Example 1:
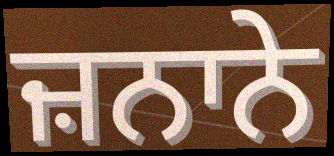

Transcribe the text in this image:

ਜ਼ਨਾਨੇ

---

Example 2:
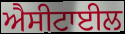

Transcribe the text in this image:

ਐਸੀਟਾਈਲ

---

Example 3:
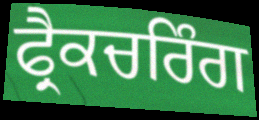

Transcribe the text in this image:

ਫ੍ਰੈਕਚਰਿੰਗ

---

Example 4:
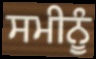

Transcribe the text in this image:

ਸਮੀਨੂੰ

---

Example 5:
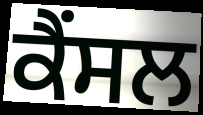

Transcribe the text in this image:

ਕੈਂਸਲ